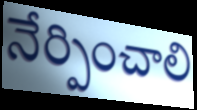
నేర్పించాలి